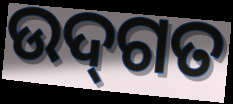
ଉଦ୍‌ଗତ